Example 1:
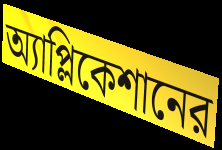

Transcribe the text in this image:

অ্যাপ্লিকেশানের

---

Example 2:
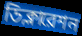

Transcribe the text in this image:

ডিক্লারেশন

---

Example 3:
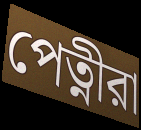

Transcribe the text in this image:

পেত্নীরা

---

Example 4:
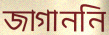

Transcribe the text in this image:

জাগাননি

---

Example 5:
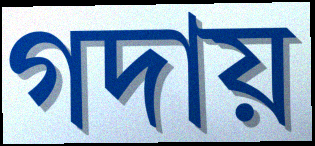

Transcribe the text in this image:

গদায়